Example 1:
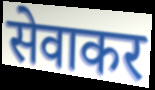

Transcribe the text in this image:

सेवाकर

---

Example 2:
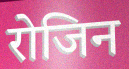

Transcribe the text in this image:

रोजिन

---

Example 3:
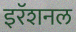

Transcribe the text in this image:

इरॅशनल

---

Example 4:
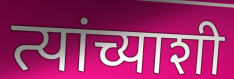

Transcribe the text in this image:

त्यांच्याशी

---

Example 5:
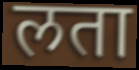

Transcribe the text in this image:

लता